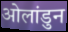
ओलांडुन